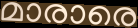
മാരാരെ